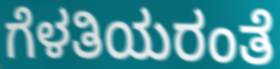
ಗೆಳತಿಯರಂತೆ